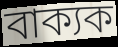
বাক্যক